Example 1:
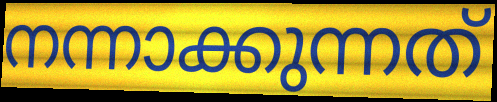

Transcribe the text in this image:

നന്നാക്കുന്നത്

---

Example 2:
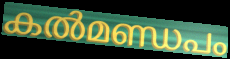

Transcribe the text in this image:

കൽമണ്ഡപം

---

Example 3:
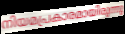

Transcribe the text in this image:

നിയമപ്രകാരമായിരുന്നു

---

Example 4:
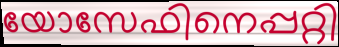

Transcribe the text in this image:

യോസേഫിനെപ്പറ്റി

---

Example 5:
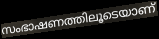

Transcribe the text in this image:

സംഭാഷണത്തിലൂടെയാണ്